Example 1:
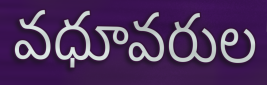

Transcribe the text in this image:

వధూవరుల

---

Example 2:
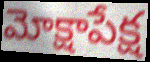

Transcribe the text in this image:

మోక్షాపేక్ష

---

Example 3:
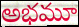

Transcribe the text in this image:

అభమూ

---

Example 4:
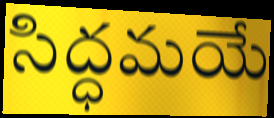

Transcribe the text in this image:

సిద్ధమయే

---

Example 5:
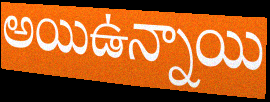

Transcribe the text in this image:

అయిఉన్నాయి